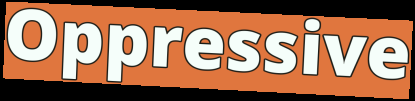
Oppressive